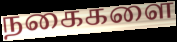
நகைகளை